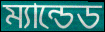
ম্যান্ডেড